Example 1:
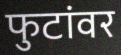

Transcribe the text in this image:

फुटांवर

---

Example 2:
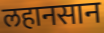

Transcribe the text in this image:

लहानसान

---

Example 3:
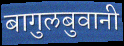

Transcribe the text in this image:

बागुलबुवानी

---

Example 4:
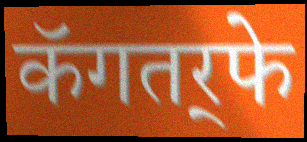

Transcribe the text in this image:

कॅगतर्फे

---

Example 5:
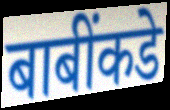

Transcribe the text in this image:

बाबींकडे